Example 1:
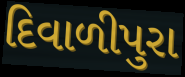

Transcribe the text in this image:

દિવાળીપુરા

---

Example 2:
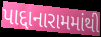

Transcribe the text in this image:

પાદ્દાનારામમાંથી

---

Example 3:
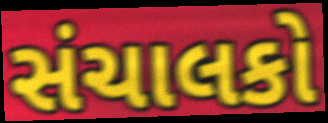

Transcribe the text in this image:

સંચાલકો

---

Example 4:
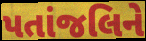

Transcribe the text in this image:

પતાંજલિને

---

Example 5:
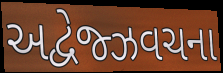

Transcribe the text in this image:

અદ્વેજ્ઝવચના